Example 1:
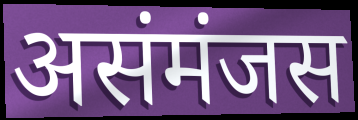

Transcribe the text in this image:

असंमंजस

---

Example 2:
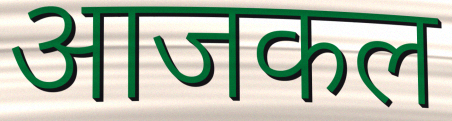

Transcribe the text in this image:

आजकल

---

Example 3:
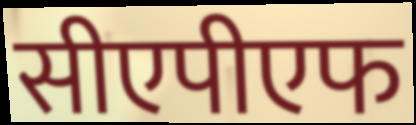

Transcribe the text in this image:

सीएपीएफ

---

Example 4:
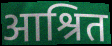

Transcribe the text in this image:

आश्रित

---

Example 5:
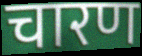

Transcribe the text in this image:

चारण